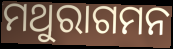
ମଥୁରାଗମନ